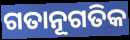
ଗତାନୂଗତିକ